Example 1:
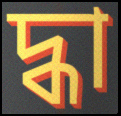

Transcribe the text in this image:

দ্ধা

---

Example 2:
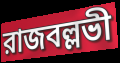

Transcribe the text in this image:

রাজবল্লভী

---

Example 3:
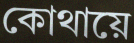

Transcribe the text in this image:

কোথায়ে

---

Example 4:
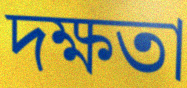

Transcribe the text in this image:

দক্ষতা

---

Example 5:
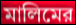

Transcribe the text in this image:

মালিমের